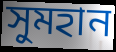
সুমহান